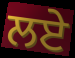
ਲਏੇ